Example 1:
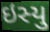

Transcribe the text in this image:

ઇસ્યુ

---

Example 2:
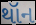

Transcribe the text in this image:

થૉન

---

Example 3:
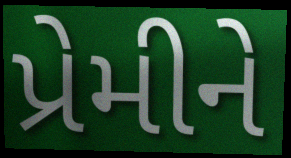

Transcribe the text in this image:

પ્રેમીને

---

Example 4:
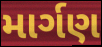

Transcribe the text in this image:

માર્ગણ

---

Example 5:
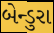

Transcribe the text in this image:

બેન્ડુરા